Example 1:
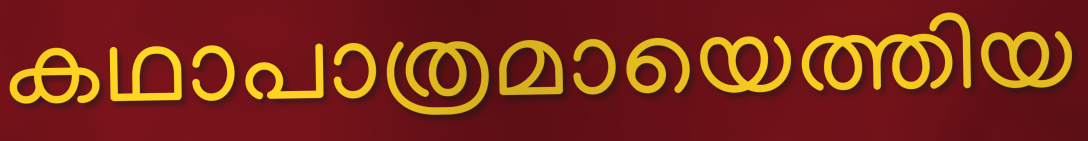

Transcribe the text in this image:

കഥാപാത്രമായെത്തിയ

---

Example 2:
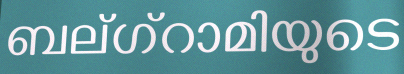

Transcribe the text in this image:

ബല്ഗ്റാമിയുടെ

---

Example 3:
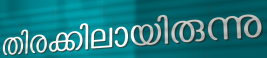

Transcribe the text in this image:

തിരക്കിലായിരുന്നു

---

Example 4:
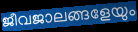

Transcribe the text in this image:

ജീവജാലങ്ങളേയും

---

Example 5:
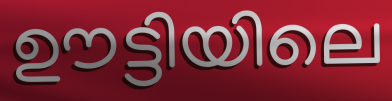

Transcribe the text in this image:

ഊട്ടിയിലെ